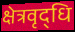
क्षेत्रवृद्धि